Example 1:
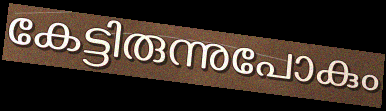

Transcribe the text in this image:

കേട്ടിരുന്നുപോകും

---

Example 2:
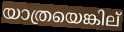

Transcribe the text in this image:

യാത്രയെങ്കില്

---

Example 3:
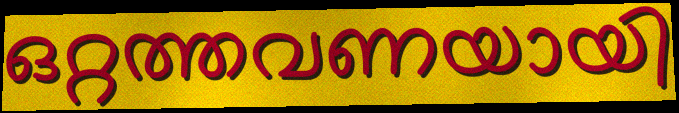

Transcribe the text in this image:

ഒറ്റത്തവണയായി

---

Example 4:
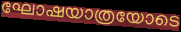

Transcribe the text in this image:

ഘോഷയാത്രയോടെ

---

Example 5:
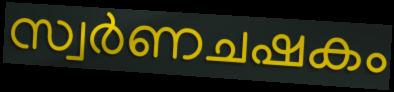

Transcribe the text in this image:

സ്വർണചഷകം